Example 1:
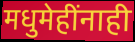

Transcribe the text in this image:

मधुमेहींनाही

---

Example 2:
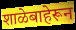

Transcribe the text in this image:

शाळेबाहेरून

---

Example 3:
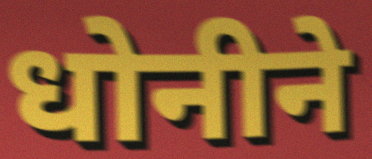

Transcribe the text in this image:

धोनीने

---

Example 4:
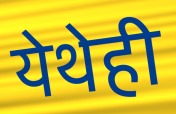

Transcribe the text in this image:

येथेही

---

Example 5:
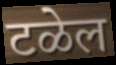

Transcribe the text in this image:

टळेल